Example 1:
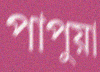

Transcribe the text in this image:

পাপুয়া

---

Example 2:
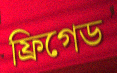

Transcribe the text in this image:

ফ্রিগেড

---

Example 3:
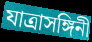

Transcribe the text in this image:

যাত্রাসঙ্গিনী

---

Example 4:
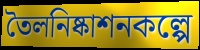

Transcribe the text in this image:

তৈলনিষ্কাশনকল্পে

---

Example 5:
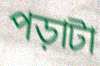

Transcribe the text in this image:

পড়াটা